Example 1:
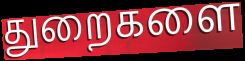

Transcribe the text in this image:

துறைகளை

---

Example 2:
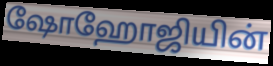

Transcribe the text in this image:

ஷோஹோஜியின்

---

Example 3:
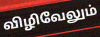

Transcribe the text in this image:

விழிவேலும்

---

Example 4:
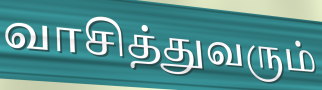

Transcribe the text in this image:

வாசித்துவரும்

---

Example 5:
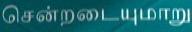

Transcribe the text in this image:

சென்றடையுமாறு